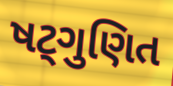
ષટ્ગુણિત